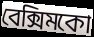
বেক্সিমকো